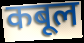
कबूल